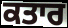
ਕਤਾਰ